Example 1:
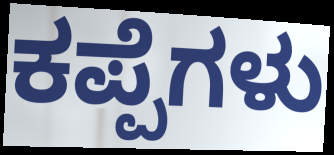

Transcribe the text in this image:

ಕಪ್ಪೆಗಳು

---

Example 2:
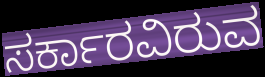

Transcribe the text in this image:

ಸರ್ಕಾರವಿರುವ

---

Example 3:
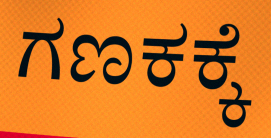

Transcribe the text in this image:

ಗಣಕಕ್ಕೆ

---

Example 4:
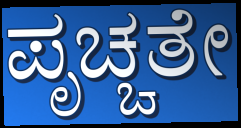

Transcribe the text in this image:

ಪೃಚ್ಚತೇ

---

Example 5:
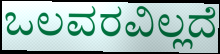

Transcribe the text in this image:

ಒಲವರವಿಲ್ಲದೆ